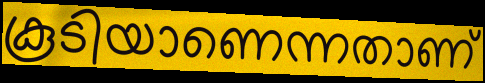
കൂടിയാണെന്നതാണ്